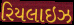
રિયલાઇઝ